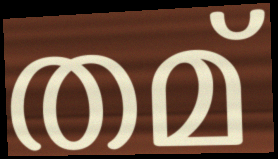
തമ്